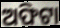
ଅଫିଟା